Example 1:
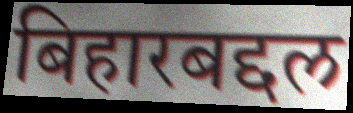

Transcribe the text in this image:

बिहारबद्दल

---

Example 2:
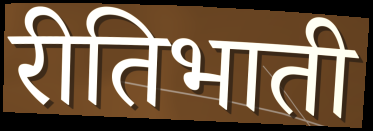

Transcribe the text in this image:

रीतिभाती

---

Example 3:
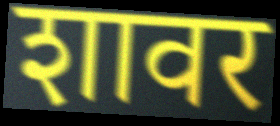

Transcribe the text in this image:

शावर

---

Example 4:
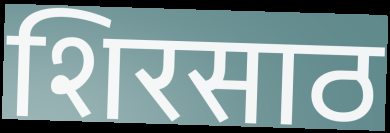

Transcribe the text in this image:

शिरसाठ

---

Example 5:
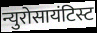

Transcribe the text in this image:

न्युरोसायंटिस्ट